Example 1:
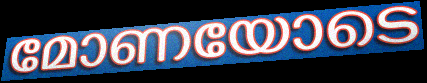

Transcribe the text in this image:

മോണയോടെ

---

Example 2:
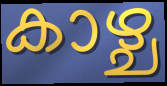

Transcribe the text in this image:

കാഴ്ച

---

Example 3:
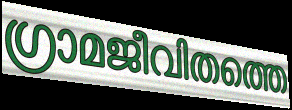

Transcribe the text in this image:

ഗ്രാമജീവിതത്തെ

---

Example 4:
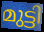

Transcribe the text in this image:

മുട്ടി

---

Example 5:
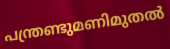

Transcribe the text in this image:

പന്ത്രണ്ടുമണിമുതൽ